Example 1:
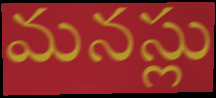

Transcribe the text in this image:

మనస్లు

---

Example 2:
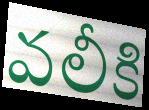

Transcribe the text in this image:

వలీకి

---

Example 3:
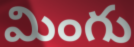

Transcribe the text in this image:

మింగు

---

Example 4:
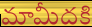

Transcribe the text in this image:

మామీదకి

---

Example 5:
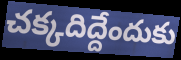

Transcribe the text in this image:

చక్కదిద్దేందుకు